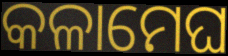
କଳାମେଘ